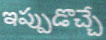
ఇప్పుడొచ్చే